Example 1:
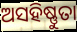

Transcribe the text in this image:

ଅସହିଷ୍ଣୁତା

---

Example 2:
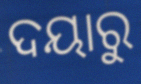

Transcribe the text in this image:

ଦୟାରୁ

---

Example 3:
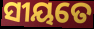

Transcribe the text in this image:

ସୀୟତେ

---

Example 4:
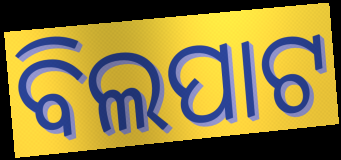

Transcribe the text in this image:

ବିଲପାଟ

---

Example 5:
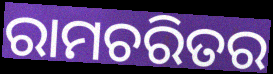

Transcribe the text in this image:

ରାମଚରିତର